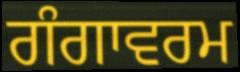
ਗੰਗਾਵਰਮ